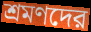
শ্রমণদের